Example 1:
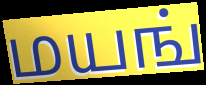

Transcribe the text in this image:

மயங்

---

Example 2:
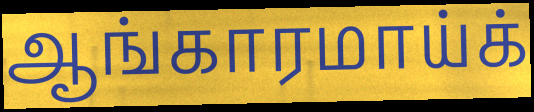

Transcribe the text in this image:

ஆங்காரமாய்க்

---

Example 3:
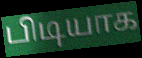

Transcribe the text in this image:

பிடியாக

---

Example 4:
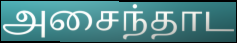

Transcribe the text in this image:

அசைந்தாட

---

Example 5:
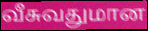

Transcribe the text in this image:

வீசுவதுமான